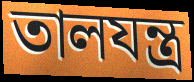
তালযন্ত্র